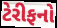
ટેરીફનો